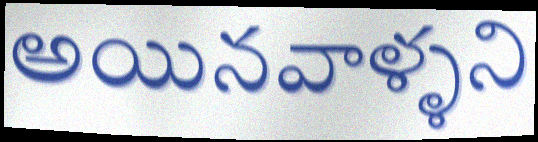
అయినవాళ్ళని